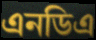
এনডিএ